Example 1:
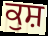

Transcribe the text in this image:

ਕੁਸ਼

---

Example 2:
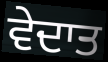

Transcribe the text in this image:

ਵੇਦਾਤ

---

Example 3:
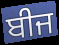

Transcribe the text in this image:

ਬੀਜ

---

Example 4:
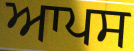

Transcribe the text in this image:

ਆਪਸ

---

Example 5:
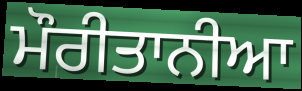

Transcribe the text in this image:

ਮੌਰੀਤਾਨੀਆ